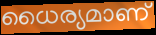
ധൈര്യമാണ്